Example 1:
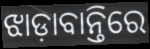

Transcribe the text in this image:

ଝାଡ଼ାବାନ୍ତିରେ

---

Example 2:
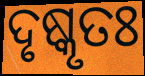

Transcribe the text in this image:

ଦୃଷ୍କୃତଃ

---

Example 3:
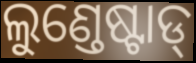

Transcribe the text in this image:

ଲୁଣ୍ଡେଷ୍ଟାଡ୍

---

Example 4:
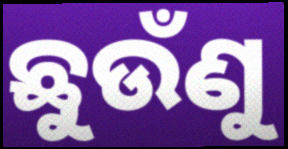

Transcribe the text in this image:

ଛୁଉଁଣୁ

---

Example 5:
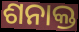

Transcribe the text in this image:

ଶନାକ୍ତ